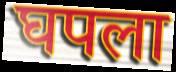
घपला